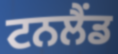
ਟਨਲੈਂਡ